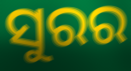
ସୁରର